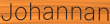
Johannan